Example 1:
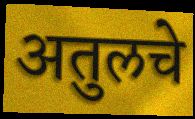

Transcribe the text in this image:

अतुलचे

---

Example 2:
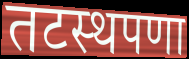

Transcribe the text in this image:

तटस्थपणा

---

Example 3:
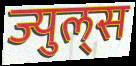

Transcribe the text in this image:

ज्युल्स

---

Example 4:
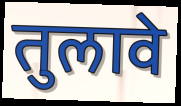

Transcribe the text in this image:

तुलावे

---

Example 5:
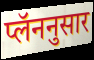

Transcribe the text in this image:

प्लॅननुसार